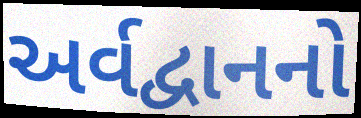
અર્વદ્વાનનો